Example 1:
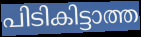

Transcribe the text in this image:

പിടികിട്ടാത്ത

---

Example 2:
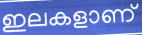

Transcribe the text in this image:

ഇലകളാണ്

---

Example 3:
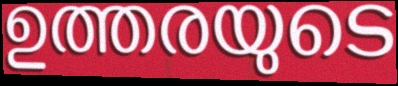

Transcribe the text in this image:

ഉത്തരയുടെ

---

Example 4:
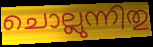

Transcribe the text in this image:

ചൊല്ലുന്നിതു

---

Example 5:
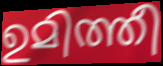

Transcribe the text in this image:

ഉമിത്തീ